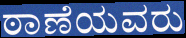
ಠಾಣೆಯವರು